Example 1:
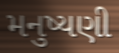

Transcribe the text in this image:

મનુષ્યણી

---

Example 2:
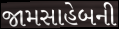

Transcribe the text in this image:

જામસાહેબની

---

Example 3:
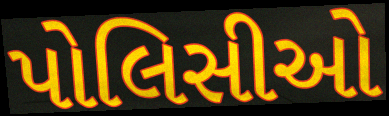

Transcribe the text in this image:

પોલિસીઓ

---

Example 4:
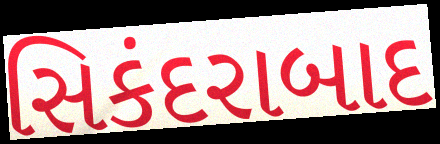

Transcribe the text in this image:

સિકંદરાબાદ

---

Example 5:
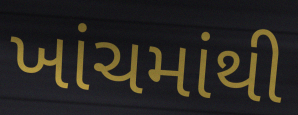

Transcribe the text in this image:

ખાંચમાંથી